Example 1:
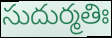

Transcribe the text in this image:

సుదుర్మతిః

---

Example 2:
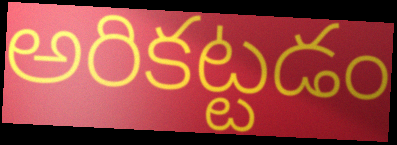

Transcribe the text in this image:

అరికట్టడం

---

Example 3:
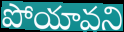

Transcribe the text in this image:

పోయావని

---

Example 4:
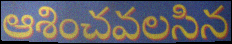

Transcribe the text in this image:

ఆశించవలసిన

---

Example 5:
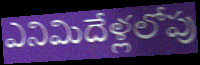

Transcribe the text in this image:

ఎనిమిదేళ్లలోపు